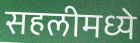
सहलीमध्ये